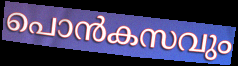
പൊൻകസവും